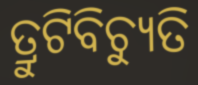
ତ୍ରୁଟିବିଚ୍ୟୁତି